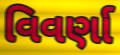
વિવર્ણા